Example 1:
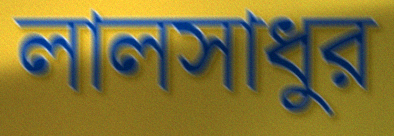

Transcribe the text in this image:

লালসাধুর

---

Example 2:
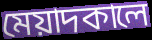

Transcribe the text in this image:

মেয়াদকালে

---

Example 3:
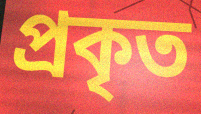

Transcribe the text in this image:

প্রকৃত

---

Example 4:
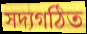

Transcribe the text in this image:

সদ্যগঠিত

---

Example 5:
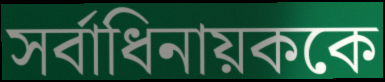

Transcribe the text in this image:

সর্বাধিনায়ককে